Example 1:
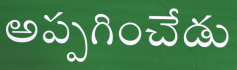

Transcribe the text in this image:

అప్పగించేడు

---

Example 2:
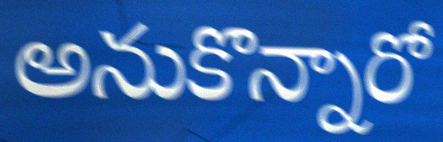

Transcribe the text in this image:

అనుకొన్నారో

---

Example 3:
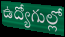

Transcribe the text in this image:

ఉద్యోగుల్లో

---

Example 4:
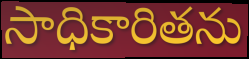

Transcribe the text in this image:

సాధికారితను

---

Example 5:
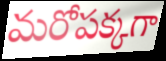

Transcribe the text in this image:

మరోపక్కగా